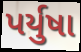
પર્યુષા